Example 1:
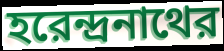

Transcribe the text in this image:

হরেন্দ্রনাথের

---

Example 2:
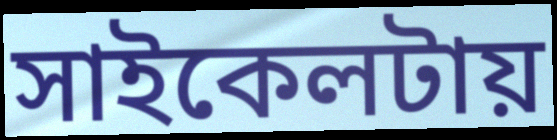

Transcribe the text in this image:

সাইকেলটায়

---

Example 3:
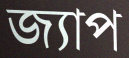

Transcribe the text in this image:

জ্যাপ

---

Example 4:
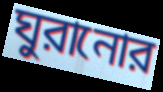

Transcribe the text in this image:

ঘুরানোর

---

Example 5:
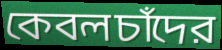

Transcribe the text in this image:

কেবলচাঁদের